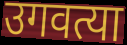
उगवत्या